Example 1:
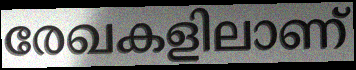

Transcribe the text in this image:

രേഖകളിലാണ്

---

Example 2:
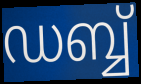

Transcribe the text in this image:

ഡബ്ബ്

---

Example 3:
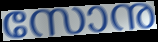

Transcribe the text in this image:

സോനു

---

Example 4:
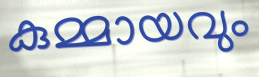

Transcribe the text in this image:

കുമ്മായവും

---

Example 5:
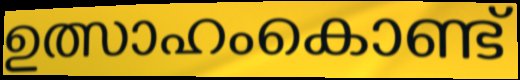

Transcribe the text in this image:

ഉത്സാഹംകൊണ്ട്